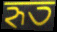
হৃত